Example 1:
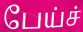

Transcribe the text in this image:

பேய்ச்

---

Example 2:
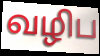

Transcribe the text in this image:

வழிப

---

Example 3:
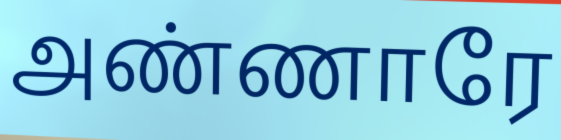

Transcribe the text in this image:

அண்ணாரே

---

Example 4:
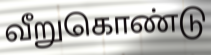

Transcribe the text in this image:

வீறுகொண்டு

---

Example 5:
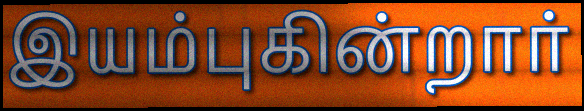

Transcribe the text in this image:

இயம்புகின்றார்